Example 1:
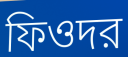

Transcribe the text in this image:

ফিওদর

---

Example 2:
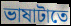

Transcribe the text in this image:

ভাষাটাতে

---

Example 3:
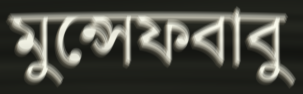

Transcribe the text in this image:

মুন্সেফবাবু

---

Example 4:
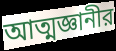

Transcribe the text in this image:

আত্মজ্ঞানীর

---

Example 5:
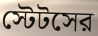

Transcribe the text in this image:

স্টেটসের